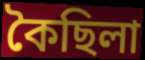
কৈছিলা